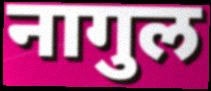
नागुल